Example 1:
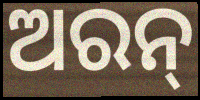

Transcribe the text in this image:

ଅରନ୍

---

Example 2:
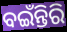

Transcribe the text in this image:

ବଇଁନ୍ତିରି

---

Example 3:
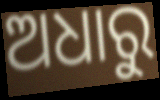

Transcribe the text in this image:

ଅଧାରୁ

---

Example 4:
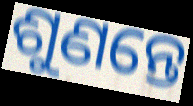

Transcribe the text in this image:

ଶୁଣନ୍ତେ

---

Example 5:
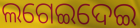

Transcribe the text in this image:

ଲଗେଇଦେଇ